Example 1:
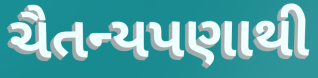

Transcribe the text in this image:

ચૈતન્યપણાથી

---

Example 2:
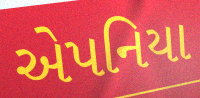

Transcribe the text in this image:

એપનિયા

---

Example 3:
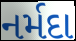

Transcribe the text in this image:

નર્મદા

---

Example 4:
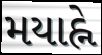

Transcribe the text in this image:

મયાહ્ને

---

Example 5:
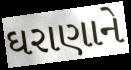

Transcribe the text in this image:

ઘરાણાને